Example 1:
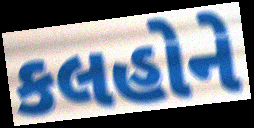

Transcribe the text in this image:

કલહોને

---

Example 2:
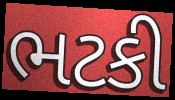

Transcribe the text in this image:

ભટકી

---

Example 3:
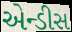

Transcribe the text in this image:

એન્ડીસ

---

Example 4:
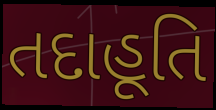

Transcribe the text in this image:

તદાહૂતિ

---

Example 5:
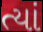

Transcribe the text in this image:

ત્‍યાં